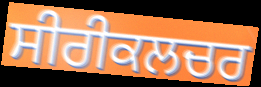
ਸੀਰੀਕਲਚਰ